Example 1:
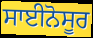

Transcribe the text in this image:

ਸਾਈਨੋਸੂਰ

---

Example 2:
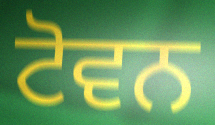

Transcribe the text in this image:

ਟੋਵਨ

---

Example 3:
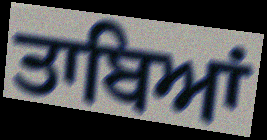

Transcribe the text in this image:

ਤਾਬਿਆਂ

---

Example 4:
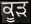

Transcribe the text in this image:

ਕੂੜ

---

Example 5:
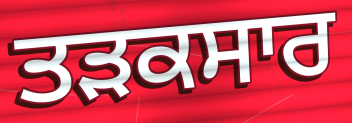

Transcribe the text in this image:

ਤੜਕਸਾਰ